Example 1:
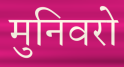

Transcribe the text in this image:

मुनिवरो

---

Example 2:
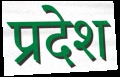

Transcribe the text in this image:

प्रदेश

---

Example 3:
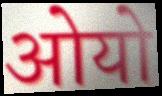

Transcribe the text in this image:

ओयो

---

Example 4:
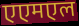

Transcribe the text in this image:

एएमएल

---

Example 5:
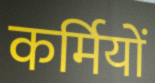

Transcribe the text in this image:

कर्मियों